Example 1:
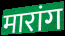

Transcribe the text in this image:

मारांग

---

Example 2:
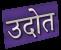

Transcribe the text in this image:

उदोत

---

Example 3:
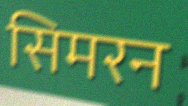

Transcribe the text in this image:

सिमरन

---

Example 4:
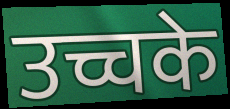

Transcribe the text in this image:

उच्चके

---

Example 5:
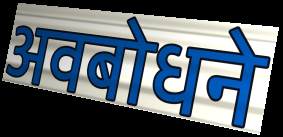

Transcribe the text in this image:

अवबोधने